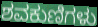
ಶವಕುಣಿಗಳು